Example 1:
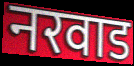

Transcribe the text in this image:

नरवाड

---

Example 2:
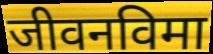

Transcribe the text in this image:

जीवनविमा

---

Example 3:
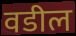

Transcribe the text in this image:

वडील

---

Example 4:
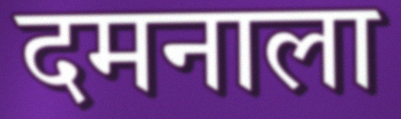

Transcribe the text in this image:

दमनाला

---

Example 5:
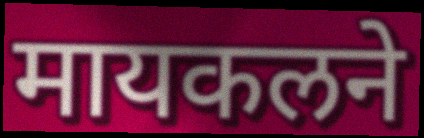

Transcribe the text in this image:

मायकलने